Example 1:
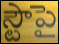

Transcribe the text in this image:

స్టౌపై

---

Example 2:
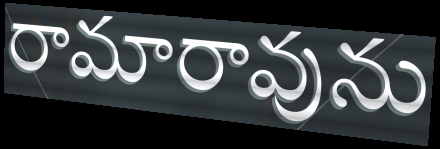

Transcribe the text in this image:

రామారావును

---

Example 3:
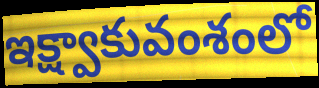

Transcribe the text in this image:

ఇక్ష్వాకువంశంలో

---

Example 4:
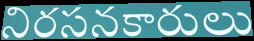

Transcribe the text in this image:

నిరసనకారులు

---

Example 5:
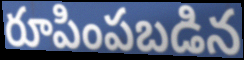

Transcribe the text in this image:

రూపింపబడిన